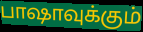
பாஷாவுக்கும்